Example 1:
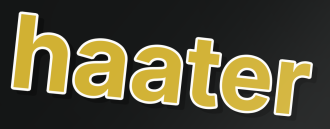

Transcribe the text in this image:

haater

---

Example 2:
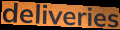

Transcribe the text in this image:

deliveries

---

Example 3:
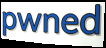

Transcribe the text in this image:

pwned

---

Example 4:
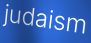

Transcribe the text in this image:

judaism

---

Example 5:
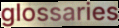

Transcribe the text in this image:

glossaries